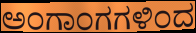
ಅಂಗಾಂಗಗಳಿಂದ